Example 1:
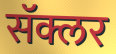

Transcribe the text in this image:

सॅक्लर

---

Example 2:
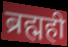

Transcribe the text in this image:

ब्रह्मही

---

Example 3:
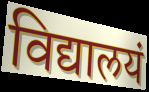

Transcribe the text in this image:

विद्यालयं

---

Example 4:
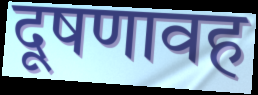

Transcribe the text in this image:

दूषणावह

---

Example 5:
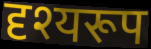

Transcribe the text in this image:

दृश्यरूप